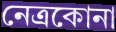
নেত্রকোনা